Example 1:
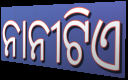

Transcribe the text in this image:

ନାନୀଟିଏ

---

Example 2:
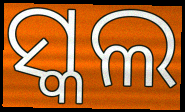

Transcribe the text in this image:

ସ୍କଲ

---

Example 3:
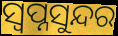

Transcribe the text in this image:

ସ୍ୱପ୍ନସୁନ୍ଦର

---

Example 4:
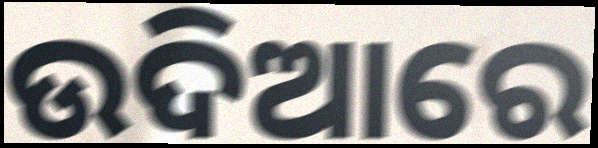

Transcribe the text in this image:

ଉଦିଆରେ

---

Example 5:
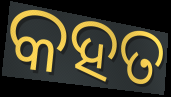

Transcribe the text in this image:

କହତ